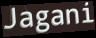
Jagani